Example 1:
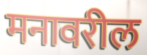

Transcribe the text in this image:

मनावरील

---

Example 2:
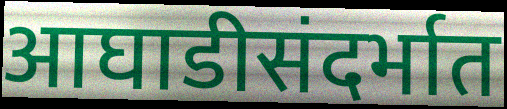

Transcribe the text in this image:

आघाडीसंदर्भात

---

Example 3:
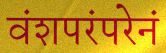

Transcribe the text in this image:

वंशपरंपरेनं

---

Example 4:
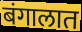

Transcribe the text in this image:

बंगालात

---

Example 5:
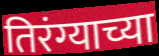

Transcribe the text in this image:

तिरंग्याच्या